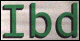
Ibd